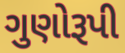
ગુણોરૂપી